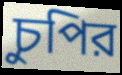
চুপির